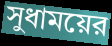
সুধাময়ের